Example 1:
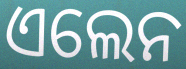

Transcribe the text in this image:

ଏଲେନ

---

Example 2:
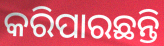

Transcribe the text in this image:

କରିପାରଛନ୍ତି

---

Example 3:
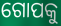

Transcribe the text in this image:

ଗୋପକୁ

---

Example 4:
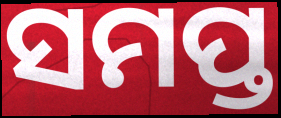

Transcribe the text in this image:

ସମପ୍ତ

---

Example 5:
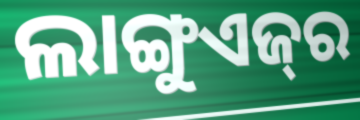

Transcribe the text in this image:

ଲାଙ୍ଗୁଏଜ୍‌ର